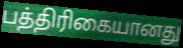
பத்திரிகையானது